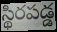
స్థిరపడ్డ